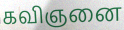
கவிஞனை